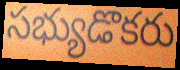
సభ్యుడొకరు